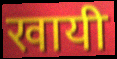
खायी